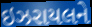
ઇઝરાયલને